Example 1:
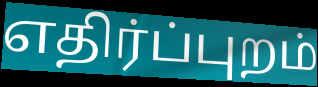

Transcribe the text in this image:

எதிர்ப்புறம்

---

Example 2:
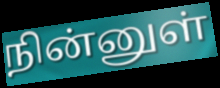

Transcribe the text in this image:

நின்னுள்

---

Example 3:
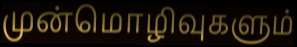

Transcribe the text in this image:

முன்மொழிவுகளும்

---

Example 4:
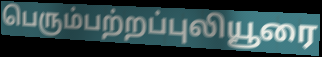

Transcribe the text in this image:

பெரும்பற்றப்புலியூரை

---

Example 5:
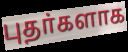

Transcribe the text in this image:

புதர்களாக